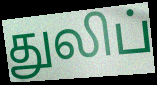
துலிப்